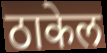
ठाकेल